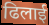
ढिलाई